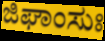
ಜಿಘಾಂಸುಃ